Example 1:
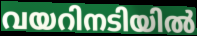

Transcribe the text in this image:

വയറിനടിയിൽ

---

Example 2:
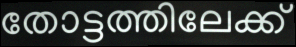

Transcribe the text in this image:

തോട്ടത്തിലേക്ക്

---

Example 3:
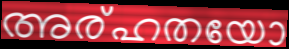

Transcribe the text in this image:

അര്ഹതയോ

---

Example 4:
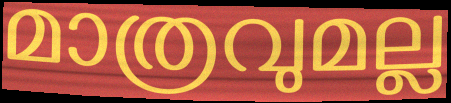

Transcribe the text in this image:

മാത്രവുമല്ല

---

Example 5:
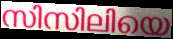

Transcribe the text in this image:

സിസിലിയെ